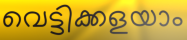
വെട്ടിക്കളയാം